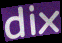
dix